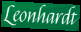
Leonhardt